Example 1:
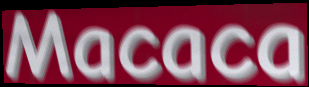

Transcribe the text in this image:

Macaca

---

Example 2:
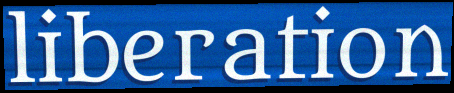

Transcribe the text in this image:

liberation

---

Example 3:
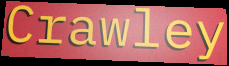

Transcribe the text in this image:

Crawley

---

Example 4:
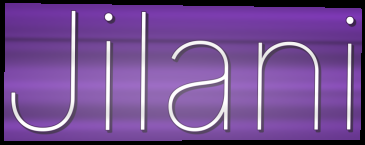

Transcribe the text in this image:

Jilani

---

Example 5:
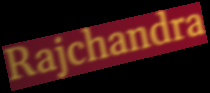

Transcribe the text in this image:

Rajchandra